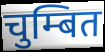
चुम्बित